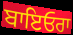
ਬਾਇਓਰਾ